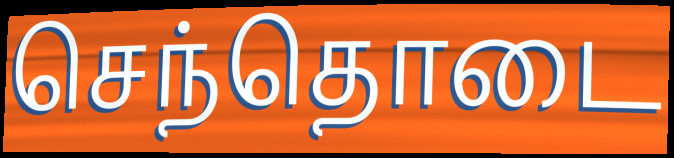
செந்தொடை